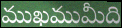
ముఖముమీది